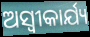
ଅସ୍ୱୀକାର୍ଯ୍ୟ